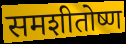
समशीतोष्ण